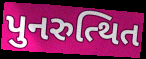
પુનરુત્થિત